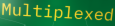
Multiplexed